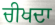
ਚੀਖਦਾ